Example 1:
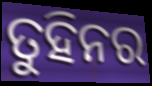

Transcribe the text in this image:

ତୁହିନର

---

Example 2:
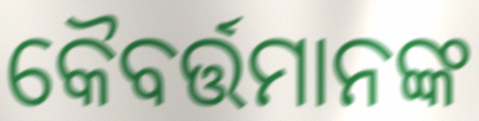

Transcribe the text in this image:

କୈବର୍ତ୍ତମାନଙ୍କ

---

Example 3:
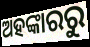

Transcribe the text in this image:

ଅହଙ୍କାରରୁ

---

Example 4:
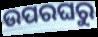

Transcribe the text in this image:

ଉପରଘରୁ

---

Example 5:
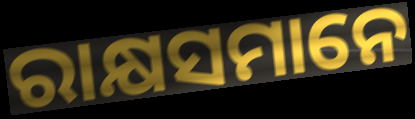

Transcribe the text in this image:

ରାକ୍ଷସମାନେ